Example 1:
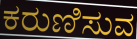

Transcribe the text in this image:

ಕರುಣಿಸುವ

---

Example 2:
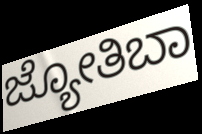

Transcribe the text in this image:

ಜ್ಯೋತಿಬಾ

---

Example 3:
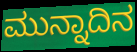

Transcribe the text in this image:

ಮುನ್ನಾದಿನ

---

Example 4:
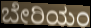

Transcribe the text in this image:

ಬೇರಿಯಂ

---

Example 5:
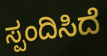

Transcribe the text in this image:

ಸ್ಪಂದಿಸಿದೆ